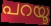
പറയൂ